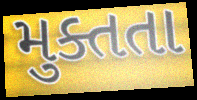
મુક્તતા